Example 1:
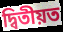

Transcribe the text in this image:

দ্বিতীয়ত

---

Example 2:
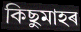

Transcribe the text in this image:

কিছুমাহৰ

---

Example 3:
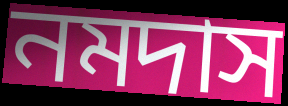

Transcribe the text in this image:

নমদাস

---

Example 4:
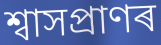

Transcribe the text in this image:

শ্বাসপ্ৰাণৰ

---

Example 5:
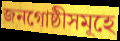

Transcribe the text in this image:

জনগোষ্ঠীসমূহে